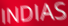
INDIAS